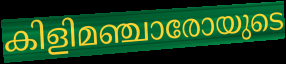
കിളിമഞ്ചാരോയുടെ